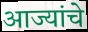
आज्यांचे